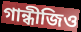
গান্ধীজিও